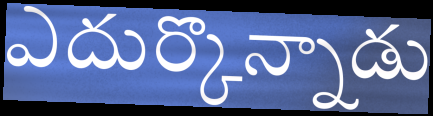
ఎదుర్కొన్నాడు